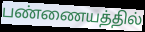
பண்ணையத்தில்